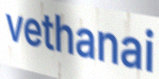
vethanai